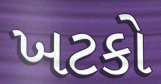
ખટકો